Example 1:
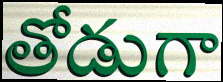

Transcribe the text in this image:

తోడుగా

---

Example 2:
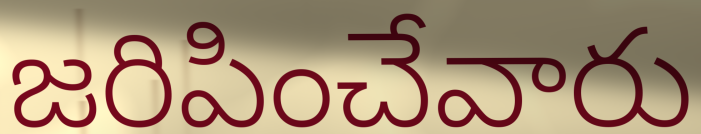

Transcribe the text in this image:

జరిపించేవారు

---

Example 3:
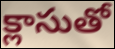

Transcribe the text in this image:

క్లాసుతో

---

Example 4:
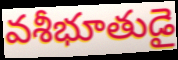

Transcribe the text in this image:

వశీభూతుడై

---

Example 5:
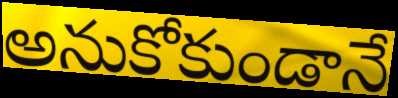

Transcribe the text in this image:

అనుకోకుండానే